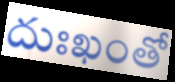
దుఃఖంతో